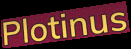
Plotinus